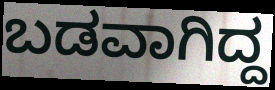
ಬಡವಾಗಿದ್ದ